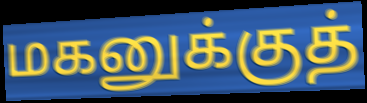
மகனுக்குத்